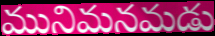
మునిమనమడు